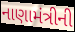
નાણામંત્રીની